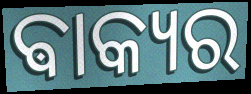
ଵାକ୍ଯର